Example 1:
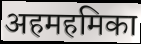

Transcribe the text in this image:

अहमहमिका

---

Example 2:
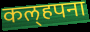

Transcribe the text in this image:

कल्हपना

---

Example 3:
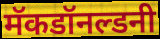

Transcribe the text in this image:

मॅकडॉनल्डनी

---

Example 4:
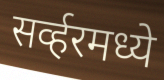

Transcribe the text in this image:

सर्व्हरमध्ये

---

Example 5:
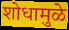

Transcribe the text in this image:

शोधामुळे